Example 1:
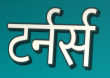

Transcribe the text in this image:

टर्नर्स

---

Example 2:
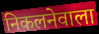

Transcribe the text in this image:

निकलनेवाला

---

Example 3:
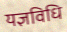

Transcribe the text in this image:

यज्ञविधि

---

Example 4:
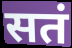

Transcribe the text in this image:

सतं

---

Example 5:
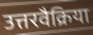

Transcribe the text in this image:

उत्तरवैक्रिया